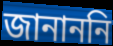
জানাননি